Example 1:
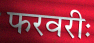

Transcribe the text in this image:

फरवरीः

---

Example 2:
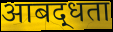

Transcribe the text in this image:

आबद्धता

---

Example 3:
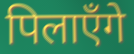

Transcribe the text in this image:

पिलाएँगे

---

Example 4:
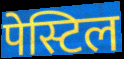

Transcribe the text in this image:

पेस्टिल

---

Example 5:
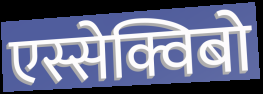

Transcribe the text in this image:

एस्सेक्विबो